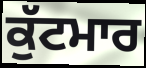
ਕੁੱਟਮਾਰ